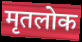
मृतलोक